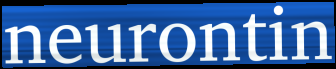
neurontin